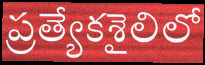
ప్రత్యేకశైలిలో